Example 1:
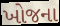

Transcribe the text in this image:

ખોજના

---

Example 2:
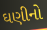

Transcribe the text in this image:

ઘણીનો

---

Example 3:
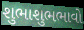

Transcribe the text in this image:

શુભાશુભભાવો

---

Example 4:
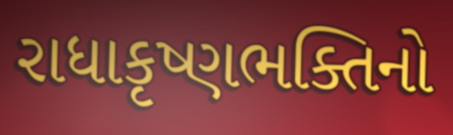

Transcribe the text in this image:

રાધાકૃષ્ણભક્તિનો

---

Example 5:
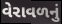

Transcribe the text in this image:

વેરાવળનું